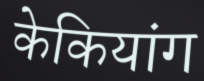
केकियांग